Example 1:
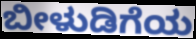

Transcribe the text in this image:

ಬೀಳುಡಿಗೆಯ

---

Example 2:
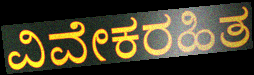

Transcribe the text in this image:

ವಿವೇಕರಹಿತ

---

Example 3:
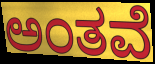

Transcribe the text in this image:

ಅಂತವೆ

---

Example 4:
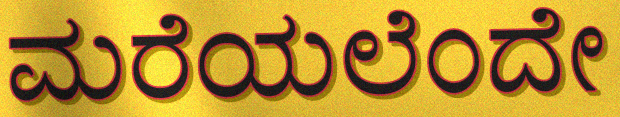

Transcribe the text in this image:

ಮರೆಯಲೆಂದೇ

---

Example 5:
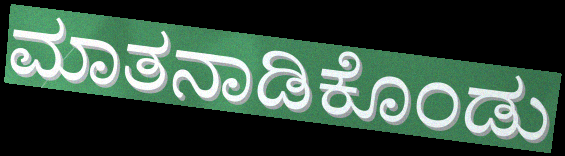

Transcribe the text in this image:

ಮಾತನಾಡಿಕೊಂಡು